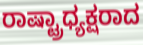
ರಾಷ್ಟ್ರಾಧ್ಯಕ್ಷರಾದ